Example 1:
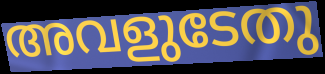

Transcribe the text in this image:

അവളുടേതു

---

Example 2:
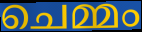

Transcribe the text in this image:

ചെമ്മം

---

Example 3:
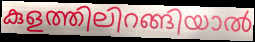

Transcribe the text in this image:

കുളത്തിലിറങ്ങിയാൽ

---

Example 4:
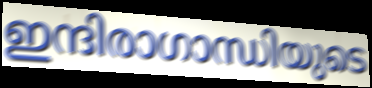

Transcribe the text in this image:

ഇന്ദിരാഗാന്ധിയുടെ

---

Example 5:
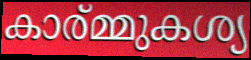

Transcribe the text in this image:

കാര്മ്മുകശ്യ